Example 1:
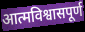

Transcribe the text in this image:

आत्मविश्वासपूर्ण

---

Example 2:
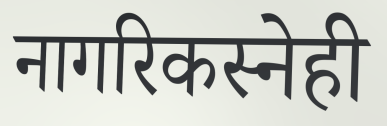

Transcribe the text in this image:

नागरिकस्नेही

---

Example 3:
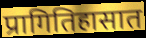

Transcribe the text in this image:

प्रागितिहासात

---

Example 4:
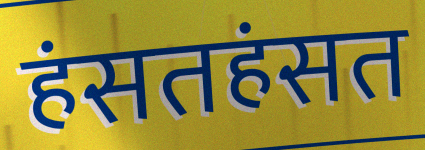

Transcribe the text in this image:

हंसतहंसत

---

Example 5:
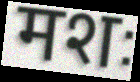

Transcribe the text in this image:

मशः